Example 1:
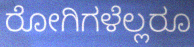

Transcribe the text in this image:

ರೋಗಿಗಳೆಲ್ಲರೂ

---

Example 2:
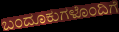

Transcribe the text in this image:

ಬಂದೂಕುಗಳೊಂದಿಗೆ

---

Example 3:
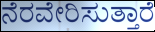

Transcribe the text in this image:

ನೆರವೇರಿಸುತ್ತಾರೆ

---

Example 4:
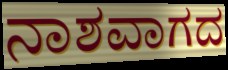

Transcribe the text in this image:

ನಾಶವಾಗದ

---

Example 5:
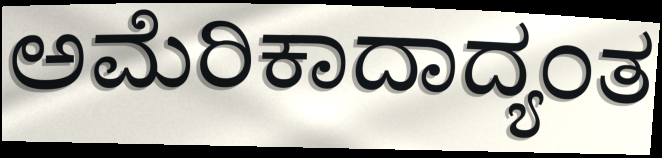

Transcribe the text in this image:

ಅಮೆರಿಕಾದಾದ್ಯಂತ